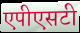
एपीएसटी